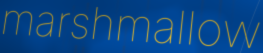
marshmallow